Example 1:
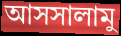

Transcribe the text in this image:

আসসালামু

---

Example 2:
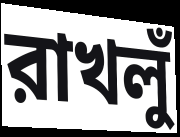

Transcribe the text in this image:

রাখলুঁ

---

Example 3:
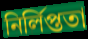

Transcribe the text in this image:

নির্লিপ্ততা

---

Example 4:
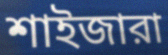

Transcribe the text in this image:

শাইজারা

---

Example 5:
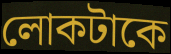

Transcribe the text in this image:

লোকটাকে